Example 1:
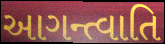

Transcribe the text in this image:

આગન્ત્વાતિ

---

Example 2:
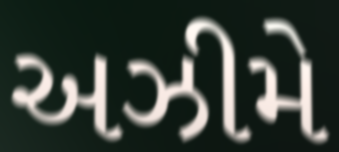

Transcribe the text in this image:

અઝીમે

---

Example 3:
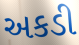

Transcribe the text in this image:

અકડી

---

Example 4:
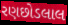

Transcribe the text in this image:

રણછોડલાલ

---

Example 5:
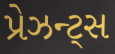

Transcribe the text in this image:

પ્રેઝન્ટ્સ